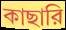
কাছারি